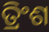
ତ୍ରିଂଶ